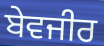
ਬੇਵਜੀਰ